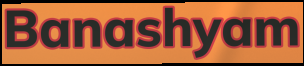
Banashyam